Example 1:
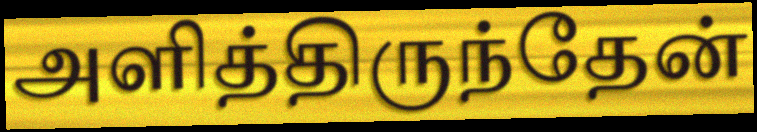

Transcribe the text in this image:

அளித்திருந்தேன்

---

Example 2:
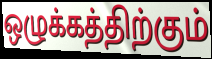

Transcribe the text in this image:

ஒழுக்கத்திற்கும்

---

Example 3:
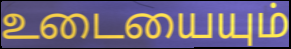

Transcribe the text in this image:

உடையையும்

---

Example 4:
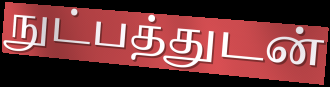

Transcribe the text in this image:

நுட்பத்துடன்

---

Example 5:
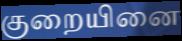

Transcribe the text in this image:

குறையினை